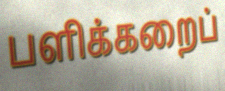
பளிக்கறைப்